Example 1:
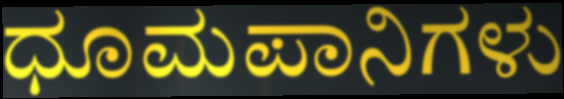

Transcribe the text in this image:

ಧೂಮಪಾನಿಗಳು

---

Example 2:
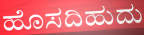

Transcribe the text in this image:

ಹೊಸದಿಹುದು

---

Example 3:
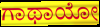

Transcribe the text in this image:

ಗಾಥಾಯೋ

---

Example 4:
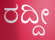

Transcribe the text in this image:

ರದ್ದೀ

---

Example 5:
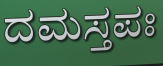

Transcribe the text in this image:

ದಮಸ್ತಪಃ